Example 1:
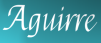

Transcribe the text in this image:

Aguirre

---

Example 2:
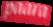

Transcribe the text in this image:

paara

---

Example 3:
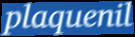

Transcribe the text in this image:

plaquenil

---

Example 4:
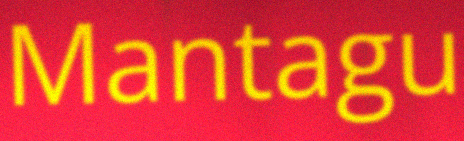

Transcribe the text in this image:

Mantagu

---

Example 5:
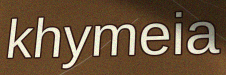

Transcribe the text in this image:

khymeia